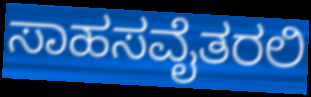
ಸಾಹಸವೈತರಲಿ